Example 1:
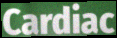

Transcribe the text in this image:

Cardiac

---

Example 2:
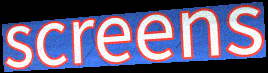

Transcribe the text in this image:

screens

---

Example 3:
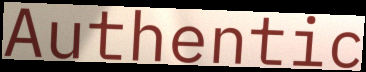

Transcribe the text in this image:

Authentic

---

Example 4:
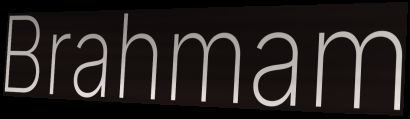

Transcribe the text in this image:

Brahmam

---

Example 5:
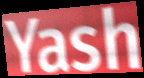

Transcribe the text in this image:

Yash